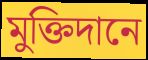
মুক্তিদানে